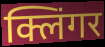
क्लिंगर